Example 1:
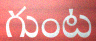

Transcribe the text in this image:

గుంట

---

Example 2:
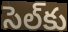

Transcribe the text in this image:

సెల్‌కు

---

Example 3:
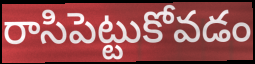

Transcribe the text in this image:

రాసిపెట్టుకోవడం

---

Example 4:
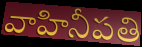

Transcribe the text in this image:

వాహినీపతి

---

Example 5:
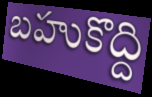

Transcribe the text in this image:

బహుకొద్ది